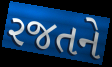
રજતને